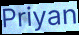
Priyan